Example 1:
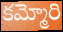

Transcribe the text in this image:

కమ్మోరి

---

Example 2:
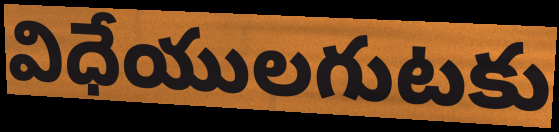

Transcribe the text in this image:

విధేయులగుటకు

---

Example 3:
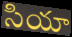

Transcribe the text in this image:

సియా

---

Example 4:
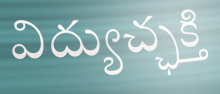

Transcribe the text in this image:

విద్యుచ్ఛక్తి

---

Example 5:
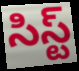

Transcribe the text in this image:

సిస్ట్